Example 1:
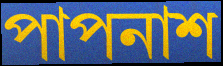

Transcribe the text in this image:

পাপনাশ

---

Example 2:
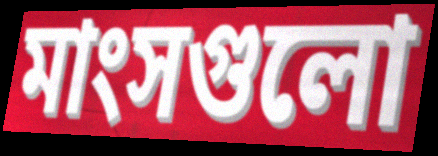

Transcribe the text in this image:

মাংসগুলো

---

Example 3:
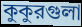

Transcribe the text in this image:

কুকুরগুলা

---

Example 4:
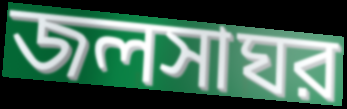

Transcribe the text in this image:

জলসাঘর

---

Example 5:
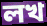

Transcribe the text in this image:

লখ